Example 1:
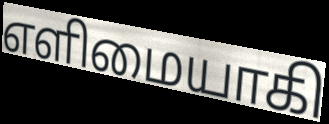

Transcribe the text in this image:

எளிமையாகி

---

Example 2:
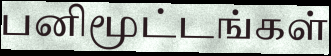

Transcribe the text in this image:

பனிமூட்டங்கள்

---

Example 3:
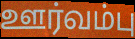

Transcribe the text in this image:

ஊர்வம்பு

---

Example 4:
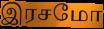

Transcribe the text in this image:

இரசமோ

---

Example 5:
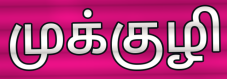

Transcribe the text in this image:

முக்குழி